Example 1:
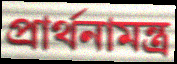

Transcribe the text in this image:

প্রার্থনামন্ত্র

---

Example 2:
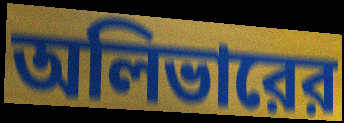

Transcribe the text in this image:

অলিভারের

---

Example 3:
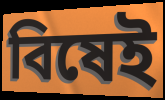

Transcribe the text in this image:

বিষেই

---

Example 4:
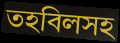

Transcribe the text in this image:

তহবিলসহ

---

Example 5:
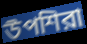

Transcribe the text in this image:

উপশিরা